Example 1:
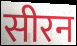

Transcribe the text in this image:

सीरन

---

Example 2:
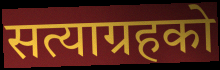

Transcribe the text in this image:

सत्याग्रहको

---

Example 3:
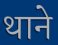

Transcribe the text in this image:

थाने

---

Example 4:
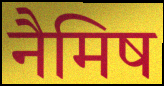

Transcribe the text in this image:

नैमिष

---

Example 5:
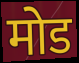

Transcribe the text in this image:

मोड